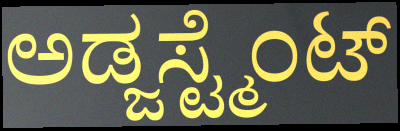
ಅಡ್ಜಸ್ಟ್ಮೆಂಟ್